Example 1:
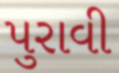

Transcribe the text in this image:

પુરાવી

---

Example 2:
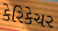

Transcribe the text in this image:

કેરિકેચર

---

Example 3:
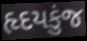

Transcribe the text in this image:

હૃદયકુંજ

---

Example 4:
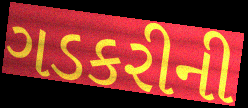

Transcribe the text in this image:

ગડકરીની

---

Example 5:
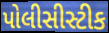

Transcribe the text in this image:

પોલીસીસ્ટીક